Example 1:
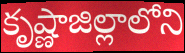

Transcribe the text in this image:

కృష్ణాజిల్లాలోని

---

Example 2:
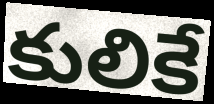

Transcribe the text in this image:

కులికే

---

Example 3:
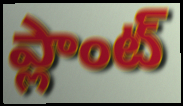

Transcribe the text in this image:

ప్లాంట్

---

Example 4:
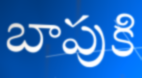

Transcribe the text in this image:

బాపుకి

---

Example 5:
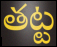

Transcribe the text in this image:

తట్ట